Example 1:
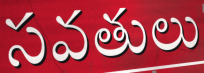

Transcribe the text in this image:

సవతులు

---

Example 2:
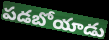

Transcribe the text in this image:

పడబోయాడు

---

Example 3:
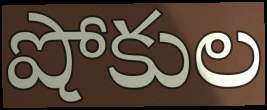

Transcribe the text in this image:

షోకుల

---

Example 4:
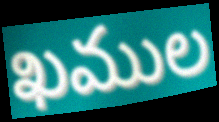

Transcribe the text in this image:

ఖముల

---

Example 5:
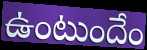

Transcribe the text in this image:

ఉంటుందేం